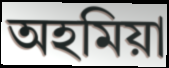
অহমিয়া